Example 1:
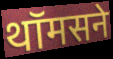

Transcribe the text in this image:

थॉमसने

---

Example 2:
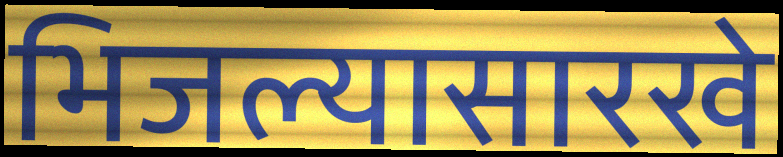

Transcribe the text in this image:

भिजल्यासारखे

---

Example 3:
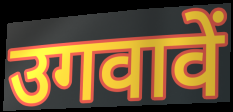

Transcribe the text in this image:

उगवावें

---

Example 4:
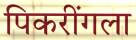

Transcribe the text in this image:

पिकरींगला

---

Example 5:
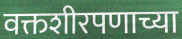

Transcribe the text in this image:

वक्तशीरपणाच्या